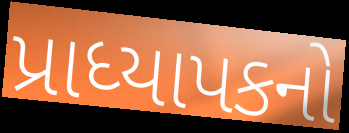
પ્રાધ્યાપકનો